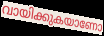
വായിക്കുകയാണോ